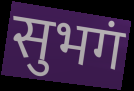
सुभगं